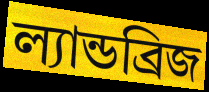
ল্যান্ডব্রিজ